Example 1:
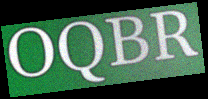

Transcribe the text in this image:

OQBR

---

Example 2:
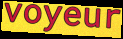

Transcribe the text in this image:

voyeur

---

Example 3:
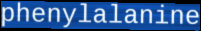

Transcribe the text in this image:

phenylalanine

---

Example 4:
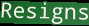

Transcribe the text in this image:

Resigns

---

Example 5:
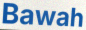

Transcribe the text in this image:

Bawah